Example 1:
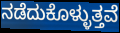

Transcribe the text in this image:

ನಡೆದುಕೊಳ್ಳುತ್ತವೆ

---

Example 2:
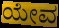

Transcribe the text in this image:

ಯೇವ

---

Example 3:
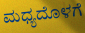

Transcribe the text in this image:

ಮಧ್ಯದೊಳಗೆ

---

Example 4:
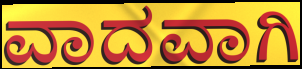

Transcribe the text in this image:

ವಾದವಾಗಿ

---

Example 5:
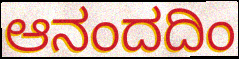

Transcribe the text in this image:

ಆನಂದದಿಂ